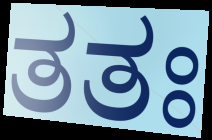
ತತಃ